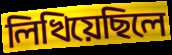
লিখিয়েছিলে